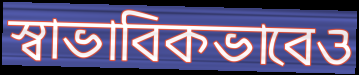
স্বাভাবিকভাবেও